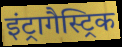
इंट्रागैस्ट्रिक